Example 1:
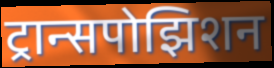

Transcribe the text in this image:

ट्रान्सपोझिशन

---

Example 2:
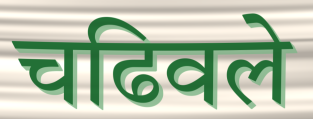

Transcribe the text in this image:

चढिवले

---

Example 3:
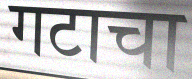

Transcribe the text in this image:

गटाचा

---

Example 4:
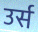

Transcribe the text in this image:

उर्स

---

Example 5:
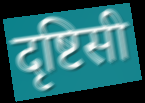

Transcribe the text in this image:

दृष्टिसी